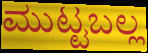
ಮುಟ್ಟಬಲ್ಲ